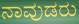
ನಾವುಡರು